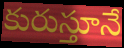
కురుస్తూనే